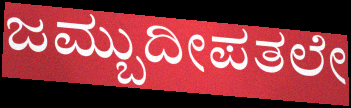
ಜಮ್ಬುದೀಪತಲೇ